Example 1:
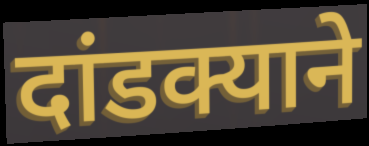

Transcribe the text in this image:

दांडक्याने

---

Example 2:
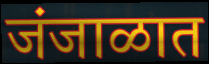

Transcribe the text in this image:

जंजाळात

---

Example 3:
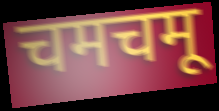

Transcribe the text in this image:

चमचमू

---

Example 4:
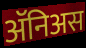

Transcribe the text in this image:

ॲनिअस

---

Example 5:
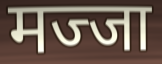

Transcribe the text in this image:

मज्जा